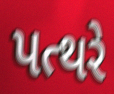
પત્થરે